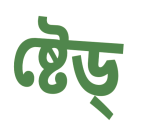
ষ্টেড্